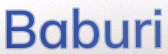
Baburi